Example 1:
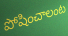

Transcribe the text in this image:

పోషించాలంట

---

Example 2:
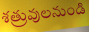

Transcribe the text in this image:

శత్రువులనుండి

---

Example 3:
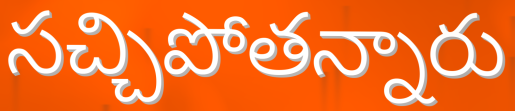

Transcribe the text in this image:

సచ్చిపోతన్నారు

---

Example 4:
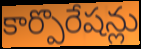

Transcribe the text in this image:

కార్పొరేషన్లు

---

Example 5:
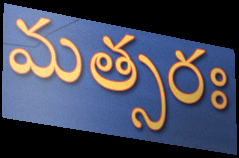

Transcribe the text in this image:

మత్సరః